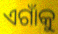
ଏଗାଁକୁ